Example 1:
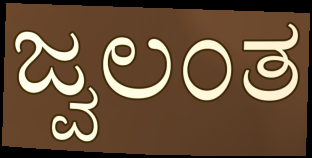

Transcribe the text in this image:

ಜ್ವಲಂತ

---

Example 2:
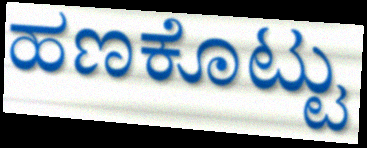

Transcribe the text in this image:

ಹಣಕೊಟ್ಟು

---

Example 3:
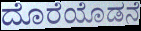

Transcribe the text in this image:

ದೊರೆಯೊಡನೆ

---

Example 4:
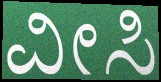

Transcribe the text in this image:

ವೀಸಿ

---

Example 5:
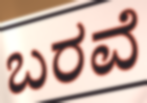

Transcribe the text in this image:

ಬರವೆ